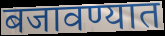
बजावण्यात